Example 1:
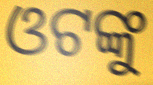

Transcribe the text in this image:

ଓଟଙ୍କୁ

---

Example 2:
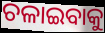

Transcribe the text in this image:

ଚଳାଇବାକୁ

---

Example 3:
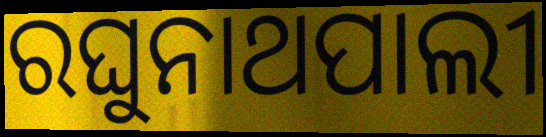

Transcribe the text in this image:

ରଘୁନାଥପାଲୀ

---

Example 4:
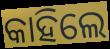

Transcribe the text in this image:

କାହିଲେ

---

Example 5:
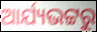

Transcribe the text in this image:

ଆର୍ଯ୍ୟଭଟ୍ଟରୁ